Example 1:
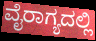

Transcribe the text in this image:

ವೈರಾಗ್ಯದಲ್ಲಿ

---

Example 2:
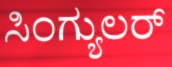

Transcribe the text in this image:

ಸಿಂಗ್ಯುಲರ್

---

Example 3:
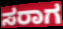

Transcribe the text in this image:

ಸರಾಗ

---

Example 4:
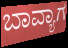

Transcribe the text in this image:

ಬಾವ್ಯಾಗ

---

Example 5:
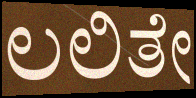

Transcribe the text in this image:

ಲಲಿತೇ